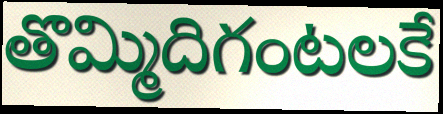
తొమ్మిదిగంటలకే